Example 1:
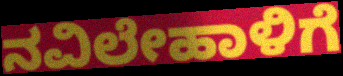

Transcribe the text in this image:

ನವಿಲೇಹಾಳಿಗೆ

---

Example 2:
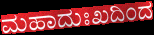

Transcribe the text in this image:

ಮಹಾದುಃಖದಿಂದ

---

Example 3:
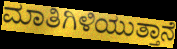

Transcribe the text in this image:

ಮಾತಿಗಿಳಿಯುತ್ತಾನೆ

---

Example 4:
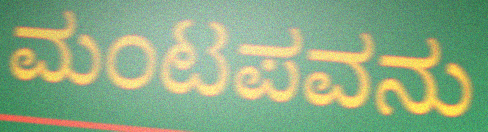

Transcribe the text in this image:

ಮಂಟಪವನು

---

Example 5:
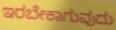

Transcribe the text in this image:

ಇರಬೇಕಾಗುವುದು